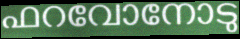
ഫറവോനോടു